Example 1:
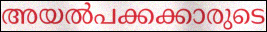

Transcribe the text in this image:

അയൽപക്കക്കാരുടെ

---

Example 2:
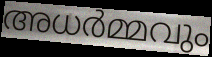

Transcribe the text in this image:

അധർമ്മവും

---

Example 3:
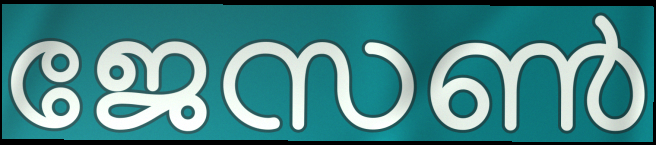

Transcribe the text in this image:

ജേസൺ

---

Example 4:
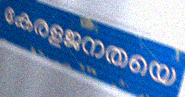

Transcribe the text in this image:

കേരളജനതയെ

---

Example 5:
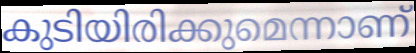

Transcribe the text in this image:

കുടിയിരിക്കുമെന്നാണ്